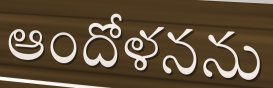
ఆందోళనను